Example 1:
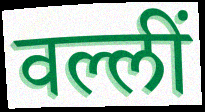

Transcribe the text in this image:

वल्लीं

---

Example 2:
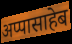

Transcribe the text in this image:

अप्पासाहेब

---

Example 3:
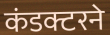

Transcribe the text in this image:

कंडक्टरने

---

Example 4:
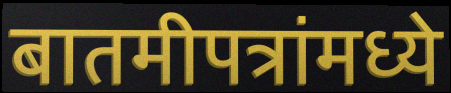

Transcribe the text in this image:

बातमीपत्रांमध्ये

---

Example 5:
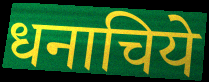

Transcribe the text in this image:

धनाचिये